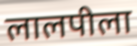
लालपीला